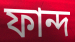
ফান্দ